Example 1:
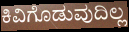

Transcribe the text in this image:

ಕಿವಿಗೊಡುವುದಿಲ್ಲ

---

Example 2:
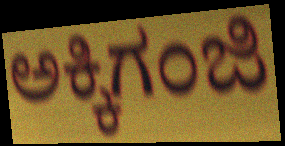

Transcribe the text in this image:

ಅಕ್ಕಿಗಂಜಿ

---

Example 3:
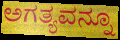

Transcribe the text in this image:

ಅಗತ್ಯವನ್ನೂ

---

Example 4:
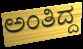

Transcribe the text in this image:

ಅಂತಿದ್ದ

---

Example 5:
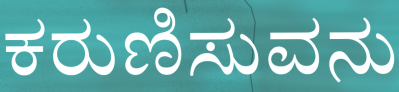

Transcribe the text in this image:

ಕರುಣಿಸುವನು